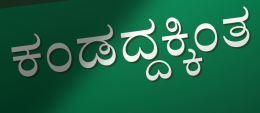
ಕಂಡದ್ದಕ್ಕಿಂತ